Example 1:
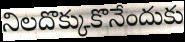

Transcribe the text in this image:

నిలదొక్కుకొనేందుకు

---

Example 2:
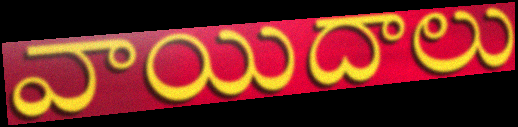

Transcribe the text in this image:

వాయిదాలు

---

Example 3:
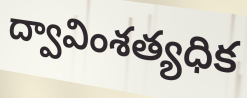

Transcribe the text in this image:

ద్వావింశత్యధిక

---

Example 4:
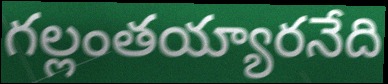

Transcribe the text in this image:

గల్లంతయ్యారనేది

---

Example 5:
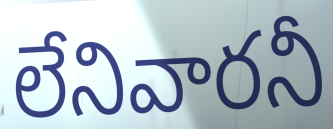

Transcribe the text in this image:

లేనివారనీ